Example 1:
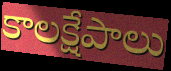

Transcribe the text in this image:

కాలక్షేపాలు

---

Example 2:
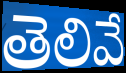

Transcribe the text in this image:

తెలివే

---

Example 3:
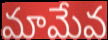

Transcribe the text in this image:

మామేవ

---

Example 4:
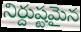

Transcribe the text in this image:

నిర్దుష్టమైన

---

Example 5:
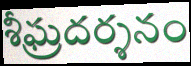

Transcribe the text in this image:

శీఘ్రదర్శనం